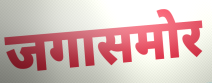
जगासमोर